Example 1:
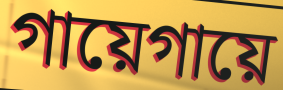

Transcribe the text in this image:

গায়েগায়ে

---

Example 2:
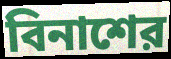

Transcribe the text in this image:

বিনাশের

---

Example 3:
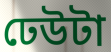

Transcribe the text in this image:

ঢেউটা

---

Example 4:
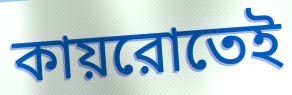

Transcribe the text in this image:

কায়রোতেই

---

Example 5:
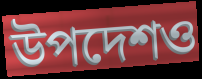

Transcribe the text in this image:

উপদেশও